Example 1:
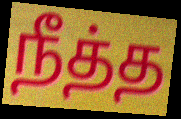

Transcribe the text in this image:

நீத்த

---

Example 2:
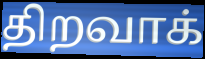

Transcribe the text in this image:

திறவாக்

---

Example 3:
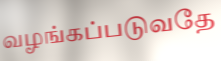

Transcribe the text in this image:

வழங்கப்படுவதே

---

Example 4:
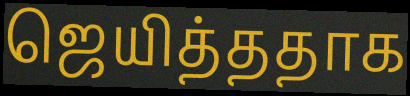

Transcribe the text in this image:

ஜெயித்ததாக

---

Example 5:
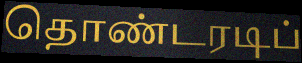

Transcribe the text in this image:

தொண்டரடிப்